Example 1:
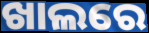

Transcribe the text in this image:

ଖାଲରେ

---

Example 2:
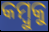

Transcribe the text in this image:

କମ୍ବୁକୁ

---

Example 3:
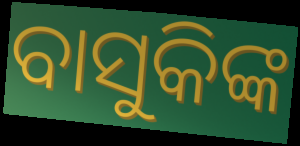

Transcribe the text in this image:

ବାସୁକିଙ୍କ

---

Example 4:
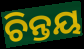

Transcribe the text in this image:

ଚିନ୍ତୟ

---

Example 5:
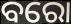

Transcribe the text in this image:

ବରୋ